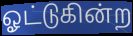
ஓட்டுகின்ற